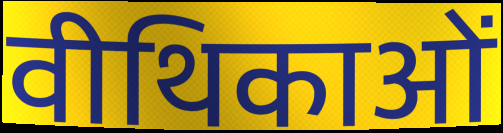
वीथिकाओं